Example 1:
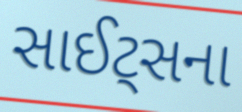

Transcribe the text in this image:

સાઈટ્સના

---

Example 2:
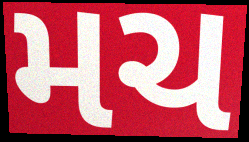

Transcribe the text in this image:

મચ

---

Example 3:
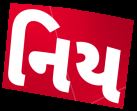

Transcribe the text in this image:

નિય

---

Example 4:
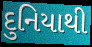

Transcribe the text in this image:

દુનિયાથી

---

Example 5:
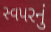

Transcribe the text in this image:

સ્વપરનું